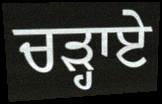
ਚੜ੍ਹਾਏ